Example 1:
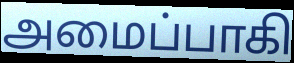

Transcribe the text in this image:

அமைப்பாகி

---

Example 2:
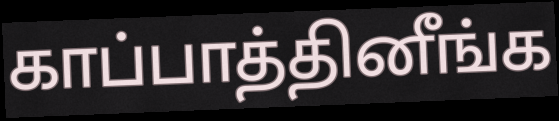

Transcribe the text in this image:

காப்பாத்தினீங்க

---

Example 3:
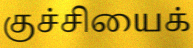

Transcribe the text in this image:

குச்சியைக்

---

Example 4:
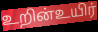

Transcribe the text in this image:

உறின்உயிர்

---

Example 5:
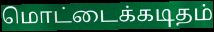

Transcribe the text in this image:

மொட்டைக்கடிதம்